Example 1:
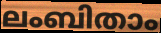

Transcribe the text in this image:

ലംബിതാം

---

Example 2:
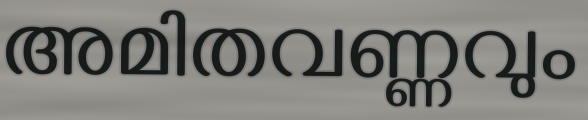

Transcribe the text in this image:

അമിതവണ്ണവും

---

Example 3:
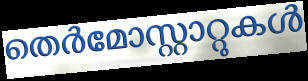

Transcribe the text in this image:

തെർമോസ്റ്റാറ്റുകൾ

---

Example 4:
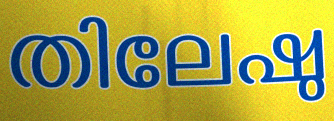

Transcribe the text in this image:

തിലേഷു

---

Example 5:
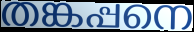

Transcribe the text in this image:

തങ്കപ്പനെ